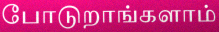
போடுறாங்களாம்